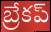
బ్రేకప్